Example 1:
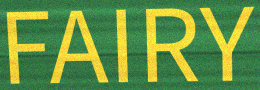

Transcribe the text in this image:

FAIRY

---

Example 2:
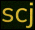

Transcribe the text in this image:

scj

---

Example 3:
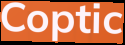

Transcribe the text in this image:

Coptic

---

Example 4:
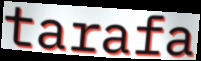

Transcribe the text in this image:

tarafa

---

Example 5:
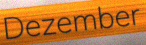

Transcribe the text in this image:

Dezember